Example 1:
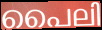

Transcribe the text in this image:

പൈലി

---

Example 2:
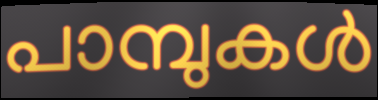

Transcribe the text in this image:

പാമ്പുകൾ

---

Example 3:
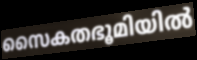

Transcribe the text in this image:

സൈകതഭൂമിയിൽ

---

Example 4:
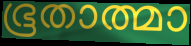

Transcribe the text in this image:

ഭൂതാത്മാ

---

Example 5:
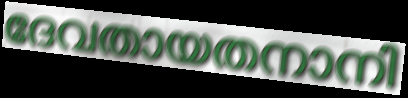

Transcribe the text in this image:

ദേവതായതനാനി